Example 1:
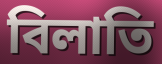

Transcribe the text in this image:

বিলাতি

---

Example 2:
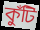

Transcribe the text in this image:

কুঁটি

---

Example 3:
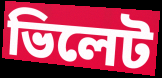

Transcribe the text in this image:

ভিলেট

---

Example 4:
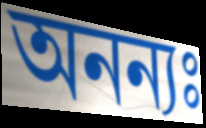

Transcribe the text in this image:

অনন্যঃ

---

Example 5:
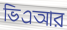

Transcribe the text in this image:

ভিএআর